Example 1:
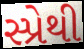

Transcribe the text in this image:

સ્પ્રેથી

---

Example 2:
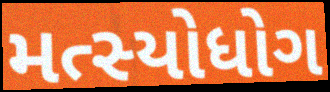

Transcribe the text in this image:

મત્સ્યોધોગ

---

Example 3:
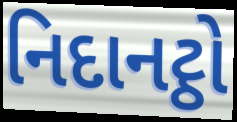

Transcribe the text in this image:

નિદાનટ્ઠો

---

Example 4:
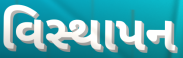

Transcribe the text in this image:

વિસ્થાપન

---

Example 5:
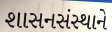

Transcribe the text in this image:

શાસનસંસ્થાને